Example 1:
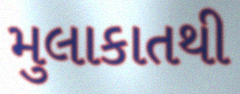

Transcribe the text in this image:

મુલાકાતથી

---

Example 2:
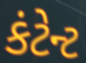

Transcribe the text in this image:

કંટેન્ટ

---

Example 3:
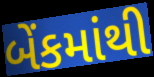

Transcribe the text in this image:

બેંકમાંથી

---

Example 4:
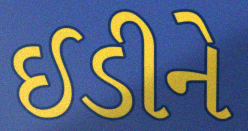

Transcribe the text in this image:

ઈડીને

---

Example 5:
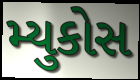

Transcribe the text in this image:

મ્યુકોસ